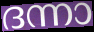
ദന്നാ